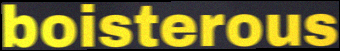
boisterous